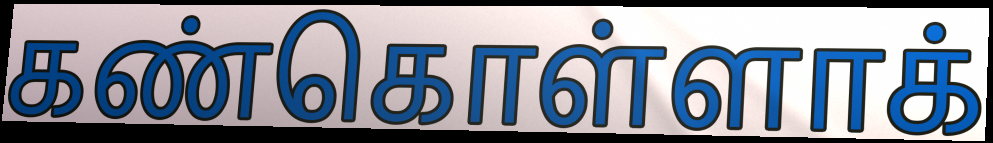
கண்கொள்ளாக்